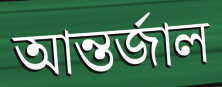
আন্তর্জাল